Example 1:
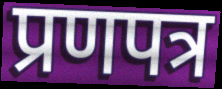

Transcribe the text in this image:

प्रणपत्र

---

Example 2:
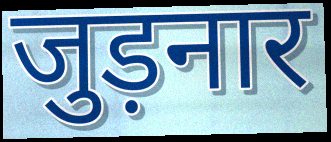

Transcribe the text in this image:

जुड़नार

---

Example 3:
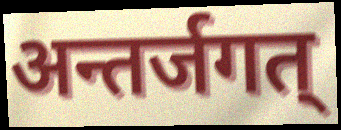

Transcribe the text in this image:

अन्तर्जगत्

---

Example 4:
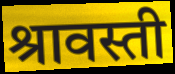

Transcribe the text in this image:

श्रावस्ती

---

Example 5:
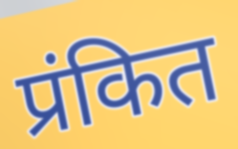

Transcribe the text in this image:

प्रंकित